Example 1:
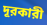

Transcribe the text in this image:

দূরকারী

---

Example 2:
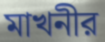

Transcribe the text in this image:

মাখনীর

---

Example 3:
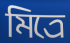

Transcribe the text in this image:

মিত্রে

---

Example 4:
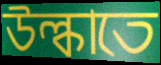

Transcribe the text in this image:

উল্কাতে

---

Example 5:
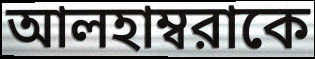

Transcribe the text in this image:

আলহাম্বরাকে